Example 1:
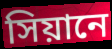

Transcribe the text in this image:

সিয়ানে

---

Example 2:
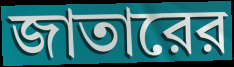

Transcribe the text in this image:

জাতারের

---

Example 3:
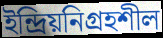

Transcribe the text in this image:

ইন্দ্রিয়নিগ্রহশীল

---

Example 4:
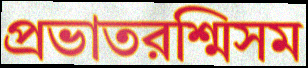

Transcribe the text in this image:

প্রভাতরশ্মিসম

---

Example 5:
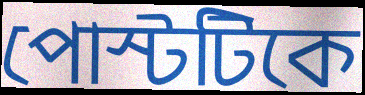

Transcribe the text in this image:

পোস্টটিকে